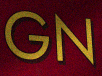
GN